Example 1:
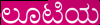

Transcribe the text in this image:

ಲೂಟಿಯ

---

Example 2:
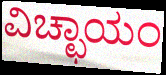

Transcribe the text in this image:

ವಿಚ್ಛಾಯಂ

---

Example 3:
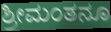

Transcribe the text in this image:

ಶ್ರೀಮಂತನೂ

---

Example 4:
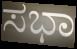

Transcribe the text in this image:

ಸಭಾ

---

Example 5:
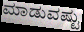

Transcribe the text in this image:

ಮಾಡುವಷ್ಟು